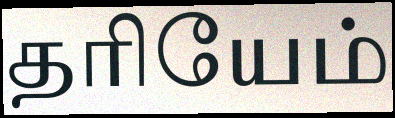
தரியேம்